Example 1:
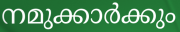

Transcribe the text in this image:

നമുക്കാർക്കും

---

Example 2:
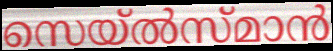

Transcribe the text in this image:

സെയ്ൽസ്മാൻ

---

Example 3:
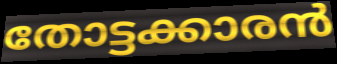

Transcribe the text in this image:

തോട്ടക്കാരൻ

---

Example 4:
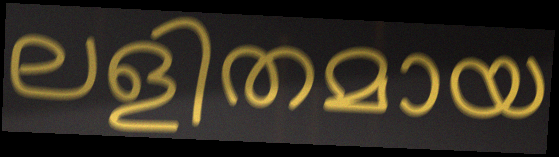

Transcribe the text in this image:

ലളിതമായ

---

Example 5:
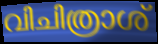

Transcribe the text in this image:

വിചിത്രാശ്